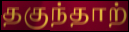
தகுந்தாற்